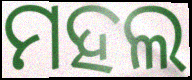
ମହଲ